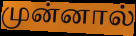
முன்னால்